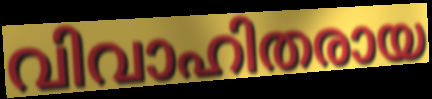
വിവാഹിതരായ